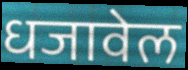
धजावेल